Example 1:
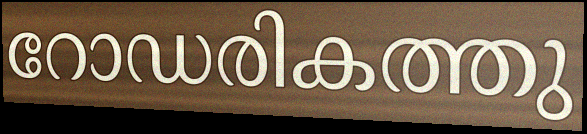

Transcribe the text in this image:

റോഡരികത്തു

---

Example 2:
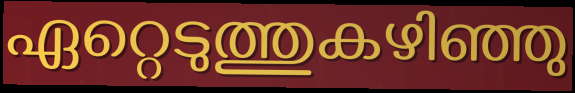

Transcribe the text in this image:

ഏറ്റെടുത്തുകഴിഞ്ഞു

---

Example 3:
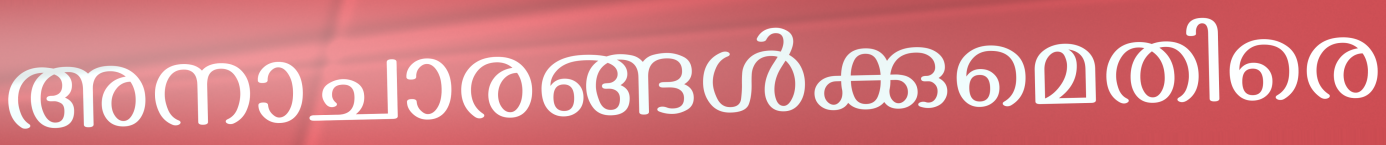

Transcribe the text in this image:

അനാചാരങ്ങൾക്കുമെതിരെ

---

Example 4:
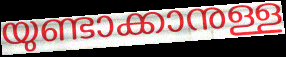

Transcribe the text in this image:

യുണ്ടാക്കാനുള്ള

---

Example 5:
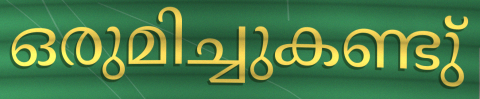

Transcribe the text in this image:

ഒരുമിച്ചുകണ്ടു്